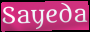
Sayeda